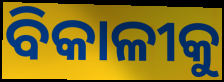
ବିକାଳୀକୁ